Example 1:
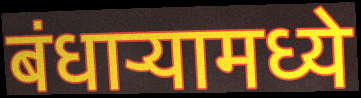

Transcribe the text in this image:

बंधाऱ्यामध्ये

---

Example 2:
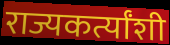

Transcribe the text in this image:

राज्यकर्त्यांशी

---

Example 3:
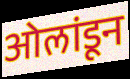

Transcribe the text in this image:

ओलांडून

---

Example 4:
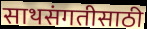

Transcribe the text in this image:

साथसंगतीसाठी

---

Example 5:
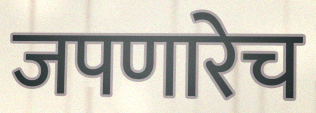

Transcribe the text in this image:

जपणारेच